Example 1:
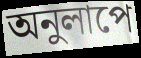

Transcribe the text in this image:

অনুলাপে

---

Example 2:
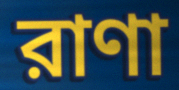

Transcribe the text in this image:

রাণা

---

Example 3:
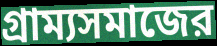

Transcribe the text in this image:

গ্রাম্যসমাজের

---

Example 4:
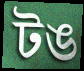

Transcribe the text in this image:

টঙ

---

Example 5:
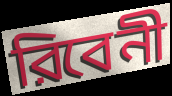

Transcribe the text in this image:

রিবেনী